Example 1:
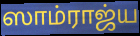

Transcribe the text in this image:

ஸாம்ராஜ்ய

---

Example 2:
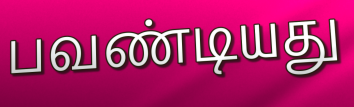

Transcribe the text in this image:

பவண்டியது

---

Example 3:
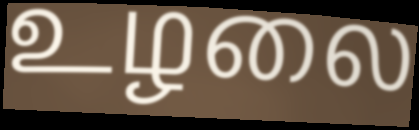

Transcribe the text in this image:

உழலை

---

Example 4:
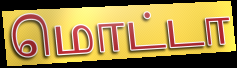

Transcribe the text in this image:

மொட்டா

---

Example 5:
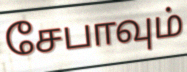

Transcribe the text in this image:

சேபாவும்